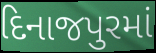
દિનાજપુરમાં